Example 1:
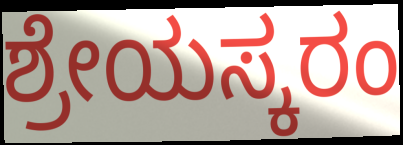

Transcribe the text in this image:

ಶ್ರೇಯಸ್ಕರಂ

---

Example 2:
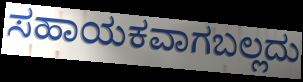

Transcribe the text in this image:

ಸಹಾಯಕವಾಗಬಲ್ಲದು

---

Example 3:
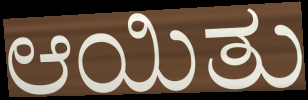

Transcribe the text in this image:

ಆಯಿತು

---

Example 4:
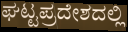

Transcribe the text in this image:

ಘಟ್ಟಪ್ರದೇಶದಲ್ಲಿ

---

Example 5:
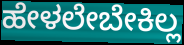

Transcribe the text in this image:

ಹೇಳಲೇಬೇಕಿಲ್ಲ